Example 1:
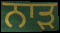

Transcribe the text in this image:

ਨਾੜ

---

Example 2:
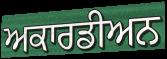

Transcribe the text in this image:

ਅਕਾਰਡੀਅਨ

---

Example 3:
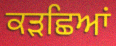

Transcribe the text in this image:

ਕੜਛਿਆਂ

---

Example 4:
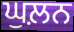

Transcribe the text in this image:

ਘੁਲ਼ਨ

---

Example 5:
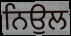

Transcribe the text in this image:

ਨਿਉਲ